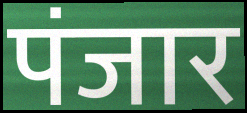
पंजार